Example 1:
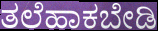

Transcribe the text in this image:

ತಲೆಹಾಕಬೇಡಿ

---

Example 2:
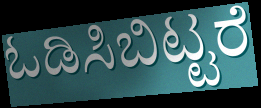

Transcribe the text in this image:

ಓಡಿಸಿಬಿಟ್ಟರೆ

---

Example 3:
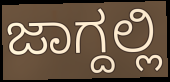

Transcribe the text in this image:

ಜಾಗ್ದಲ್ಲಿ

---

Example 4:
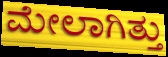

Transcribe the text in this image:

ಮೇಲಾಗಿತ್ತು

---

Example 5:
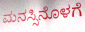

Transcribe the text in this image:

ಮನಸ್ಸಿನೊಳಗೆ